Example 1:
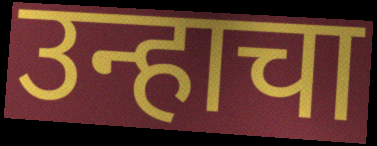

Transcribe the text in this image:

उन्हाचा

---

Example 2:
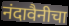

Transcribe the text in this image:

नंदावैनीचा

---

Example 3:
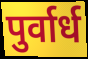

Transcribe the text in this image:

पुर्वार्ध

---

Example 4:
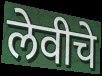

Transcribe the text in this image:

लेवीचे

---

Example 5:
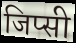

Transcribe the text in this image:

जिप्सी